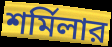
শর্মিলার